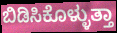
ಬಿಡಿಸಿಕೊಳ್ಳುತ್ತಾ